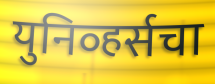
युनिव्हर्सचा